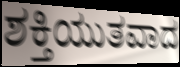
ಶಕ್ತಿಯುತವಾದ